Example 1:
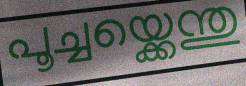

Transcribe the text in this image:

പൂച്ചയ്ക്കെന്തു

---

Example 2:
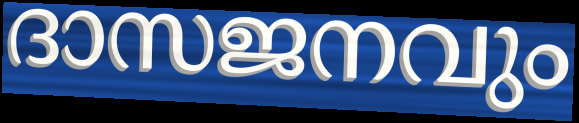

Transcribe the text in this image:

ദാസജനവും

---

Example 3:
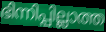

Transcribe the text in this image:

ഭിന്നിപ്പില്ലാത്ത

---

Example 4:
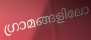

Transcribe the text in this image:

ഗ്രാമങ്ങളിലോ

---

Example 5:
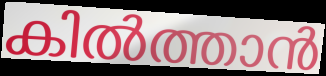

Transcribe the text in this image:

കിൽത്താൻ